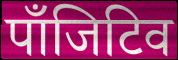
पाँजिटिव